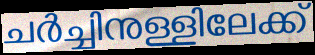
ചർച്ചിനുള്ളിലേക്ക്